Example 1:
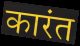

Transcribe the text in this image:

कारंत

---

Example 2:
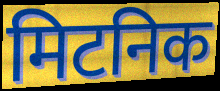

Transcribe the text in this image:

मिटनिक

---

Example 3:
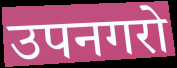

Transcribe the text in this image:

उपनगरो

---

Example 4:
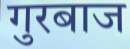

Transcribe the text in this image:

गुरबाज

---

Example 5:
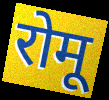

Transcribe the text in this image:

रोमू